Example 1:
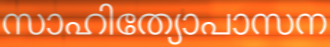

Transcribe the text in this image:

സാഹിത്യോപാസന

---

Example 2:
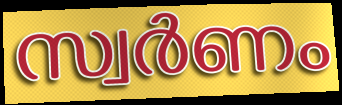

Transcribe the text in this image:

സ്വർണം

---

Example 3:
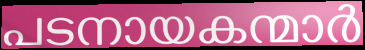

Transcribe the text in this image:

പടനായകന്മാർ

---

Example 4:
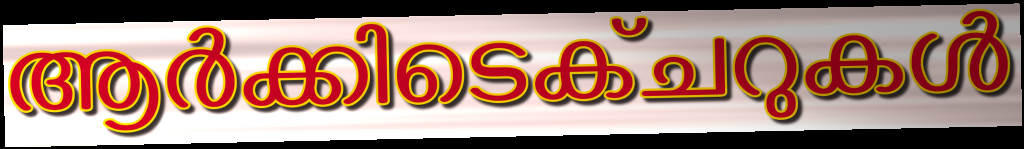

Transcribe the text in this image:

ആർക്കിടെക്ചറുകൾ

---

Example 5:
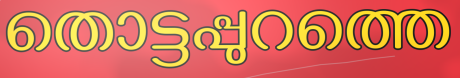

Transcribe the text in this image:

തൊട്ടപ്പുറത്തെ